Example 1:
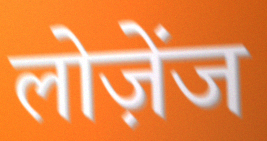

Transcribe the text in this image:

लोज़ेंज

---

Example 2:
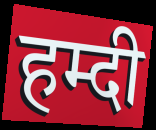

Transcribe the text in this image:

हम्दी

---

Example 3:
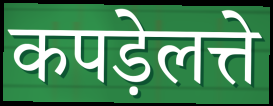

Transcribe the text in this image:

कपड़ेलत्ते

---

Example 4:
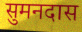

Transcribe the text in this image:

सुमनदास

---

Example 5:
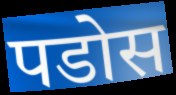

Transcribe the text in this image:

पडोस